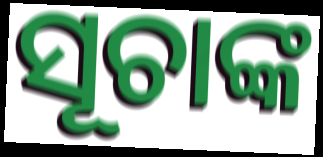
ସୂଚାଙ୍କ